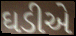
ઘડીએ